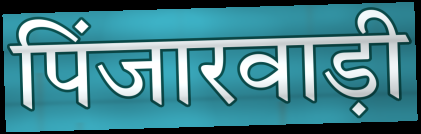
पिंजारवाड़ी